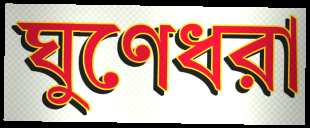
ঘুণেধরা